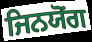
ਜਿਨਯੋਂਗ